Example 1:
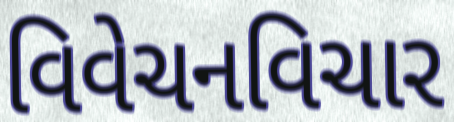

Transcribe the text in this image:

વિવેચનવિચાર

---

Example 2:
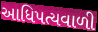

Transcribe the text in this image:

આધિપત્યવાળી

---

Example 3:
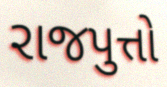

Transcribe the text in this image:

રાજપુત્તો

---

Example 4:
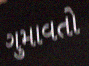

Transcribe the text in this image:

ગુમાવતો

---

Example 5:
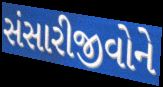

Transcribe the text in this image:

સંસારીજીવોને